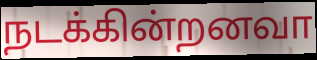
நடக்கின்றனவா